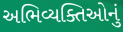
અભિવ્યક્તિઓનું